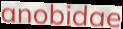
anobidae